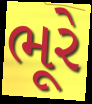
ભૂરે